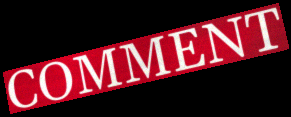
COMMENT